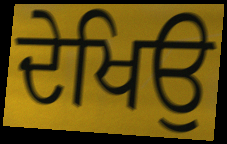
ਦੇਖਿਉ